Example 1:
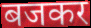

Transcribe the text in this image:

बजकर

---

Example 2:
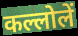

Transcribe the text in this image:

कल्लोलें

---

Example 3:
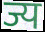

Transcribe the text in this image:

ज्य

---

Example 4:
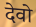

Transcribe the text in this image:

देवो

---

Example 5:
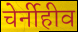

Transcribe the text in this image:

चेर्नीहीव